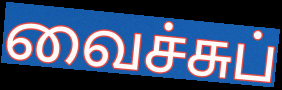
வைச்சுப்